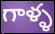
గాళ్ళ